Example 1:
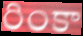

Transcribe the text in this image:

రింకా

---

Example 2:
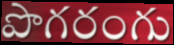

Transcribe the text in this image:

పొగరంగు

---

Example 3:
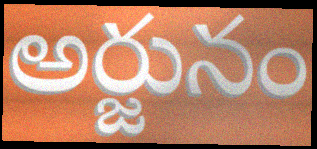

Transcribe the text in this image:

అర్జునం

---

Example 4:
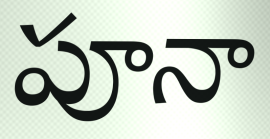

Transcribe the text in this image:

పూనా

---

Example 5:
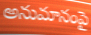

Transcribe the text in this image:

అనుమానంపై